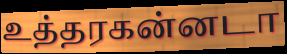
உத்தரகன்னடா